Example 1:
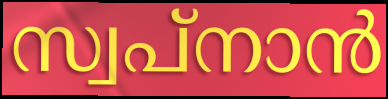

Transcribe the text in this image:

സ്വപ്നാൻ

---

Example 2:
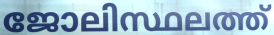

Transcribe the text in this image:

ജോലിസ്ഥലത്ത്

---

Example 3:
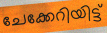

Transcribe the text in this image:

ചേക്കേറിയിട്ട്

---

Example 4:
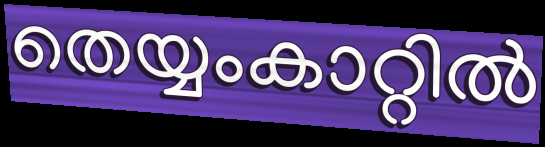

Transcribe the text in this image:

തെയ്യംകാറ്റിൽ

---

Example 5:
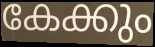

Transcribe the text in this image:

കേക്കും